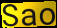
Sao